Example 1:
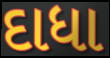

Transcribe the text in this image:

દાધા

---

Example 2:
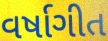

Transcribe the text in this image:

વર્ષાગીત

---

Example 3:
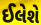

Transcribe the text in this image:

ઈલેશે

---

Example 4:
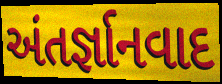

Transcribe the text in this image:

અંતર્જ્ઞાનવાદ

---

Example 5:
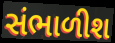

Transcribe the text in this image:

સંભાળીશ